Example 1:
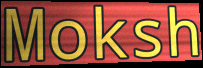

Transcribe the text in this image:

Moksh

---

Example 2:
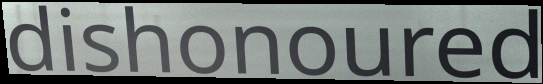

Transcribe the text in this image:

dishonoured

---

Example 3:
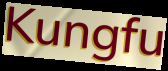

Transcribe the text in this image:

Kungfu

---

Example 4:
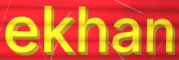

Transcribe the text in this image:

ekhan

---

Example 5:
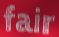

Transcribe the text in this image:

fair